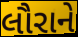
લૌરાને